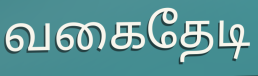
வகைதேடி